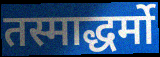
तस्माद्धर्मो